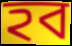
হব